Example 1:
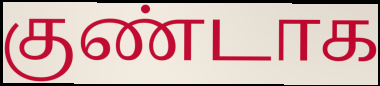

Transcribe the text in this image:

குண்டாக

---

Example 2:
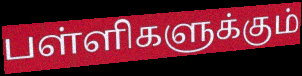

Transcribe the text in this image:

பள்ளிகளுக்கும்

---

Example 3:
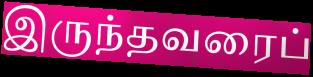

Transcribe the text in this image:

இருந்தவரைப்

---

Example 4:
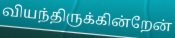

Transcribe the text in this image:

வியந்திருக்கின்றேன்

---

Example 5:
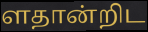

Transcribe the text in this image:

ளதான்றிட